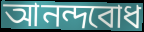
আনন্দবোধ